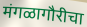
मंगळागौरीचा